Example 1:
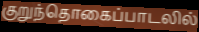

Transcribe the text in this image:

குறுந்தொகைப்பாடலில்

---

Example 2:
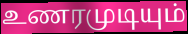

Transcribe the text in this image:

உணரமுடியும்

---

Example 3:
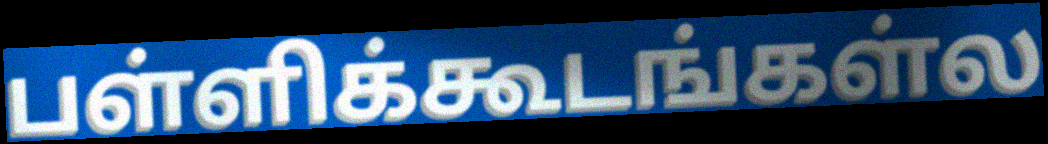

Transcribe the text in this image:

பள்ளிக்கூடங்கள்ல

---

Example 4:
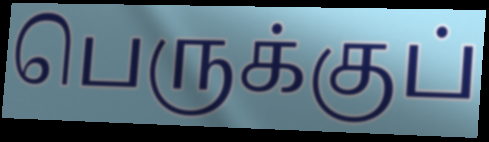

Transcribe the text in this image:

பெருக்குப்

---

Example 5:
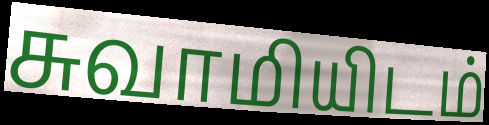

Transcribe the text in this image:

சுவாமியிடம்